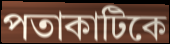
পতাকাটিকে